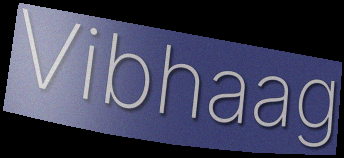
Vibhaag